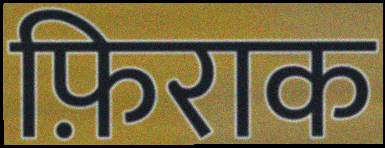
फ़िराक